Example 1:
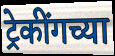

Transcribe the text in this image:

ट्रेकींगच्या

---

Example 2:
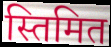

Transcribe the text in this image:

स्तिमित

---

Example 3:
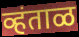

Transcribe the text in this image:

व्हंताळ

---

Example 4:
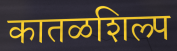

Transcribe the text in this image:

कातळशिल्प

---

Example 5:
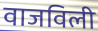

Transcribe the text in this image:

वाजविली